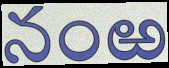
నంఱ